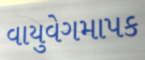
વાયુવેગમાપક